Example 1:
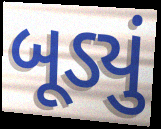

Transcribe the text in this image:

બૂડ્યું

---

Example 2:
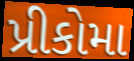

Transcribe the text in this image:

પ્રીકોમા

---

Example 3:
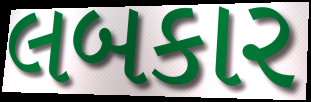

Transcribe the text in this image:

લબકાર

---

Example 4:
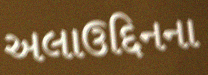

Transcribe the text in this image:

અલાઉદ્દિનના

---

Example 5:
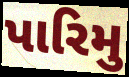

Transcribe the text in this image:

પારિમુ